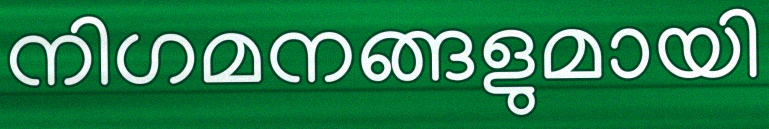
നിഗമനങ്ങളുമായി